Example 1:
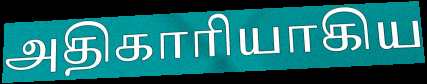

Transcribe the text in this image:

அதிகாரியாகிய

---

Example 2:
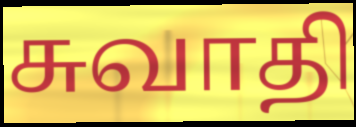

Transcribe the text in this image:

சுவாதி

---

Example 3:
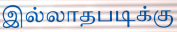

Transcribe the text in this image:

இல்லாதபடிக்கு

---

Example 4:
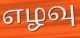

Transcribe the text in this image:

எழவு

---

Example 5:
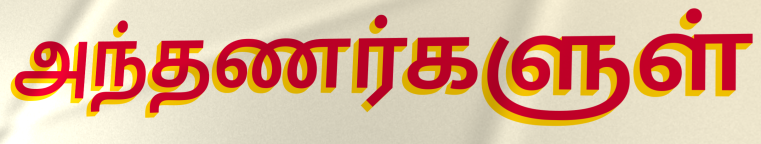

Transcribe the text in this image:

அந்தணர்களுள்